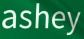
ashey